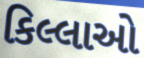
કિલ્લાઓ